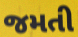
જમતી